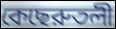
কেছেৰুতলী